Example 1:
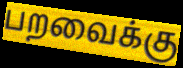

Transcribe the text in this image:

பறவைக்கு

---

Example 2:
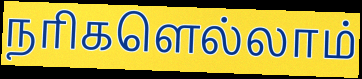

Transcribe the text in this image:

நரிகளெல்லாம்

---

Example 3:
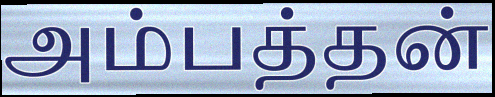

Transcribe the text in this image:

அம்பத்தன்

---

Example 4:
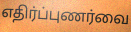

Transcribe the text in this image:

எதிர்ப்புணர்வை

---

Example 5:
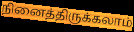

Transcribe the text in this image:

நினைத்திருக்கலாம்